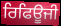
ਰਿਫਿਊਜੀ